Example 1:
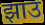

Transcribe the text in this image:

झाउ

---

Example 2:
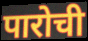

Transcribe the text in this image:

पारोची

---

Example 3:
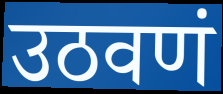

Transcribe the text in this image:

उठवणं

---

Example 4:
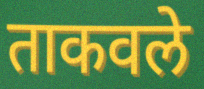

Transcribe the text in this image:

ताकवले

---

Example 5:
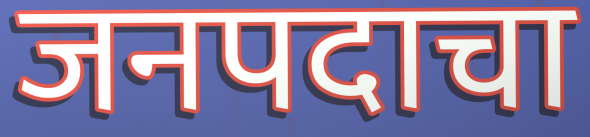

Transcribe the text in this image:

जनपदाचा